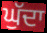
ਘੁੱਦਾ